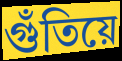
গুঁতিয়ে